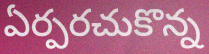
ఏర్పరచుకొన్న